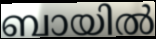
ബായിൽ